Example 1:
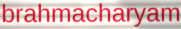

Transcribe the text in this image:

brahmacharyam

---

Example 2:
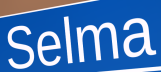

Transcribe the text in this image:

Selma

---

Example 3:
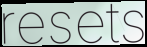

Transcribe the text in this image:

resets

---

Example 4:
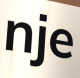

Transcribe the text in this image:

nje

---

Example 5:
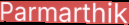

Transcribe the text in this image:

Parmarthik